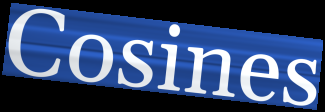
Cosines